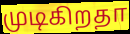
முடிகிறதா